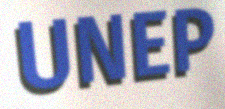
UNEP